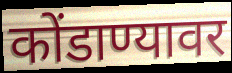
कोंडाण्यावर